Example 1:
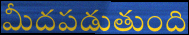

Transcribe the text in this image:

మీదపడుతుంది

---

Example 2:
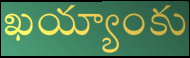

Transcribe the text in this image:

ఖయ్యాంకు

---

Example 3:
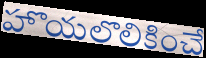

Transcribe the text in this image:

హొయలొలికించే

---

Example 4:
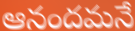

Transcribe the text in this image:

ఆనందమనే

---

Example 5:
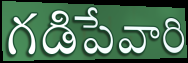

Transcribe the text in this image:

గడిపేవారి